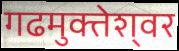
गढमुक्तेश्वर